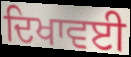
ਦਿਖਾਵਈ